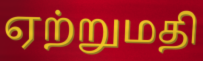
ஏற்றுமதி